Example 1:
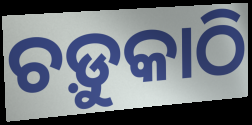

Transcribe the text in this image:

ଚଡ଼ୁକାଠି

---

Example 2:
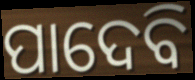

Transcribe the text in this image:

ପାଦେବି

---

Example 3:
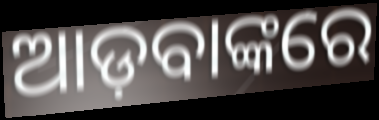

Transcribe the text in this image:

ଆଡ଼ବାଙ୍କରେ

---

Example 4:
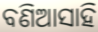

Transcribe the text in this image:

ବଣିଆସାହି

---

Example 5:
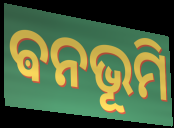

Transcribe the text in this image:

ଵନଭୂମି